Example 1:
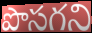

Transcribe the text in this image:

పొసగని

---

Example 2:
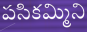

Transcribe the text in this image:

పసికమ్మిని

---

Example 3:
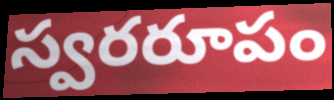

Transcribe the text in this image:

స్వరరూపం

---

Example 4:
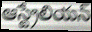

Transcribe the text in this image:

ఆస్ట్రేలియన్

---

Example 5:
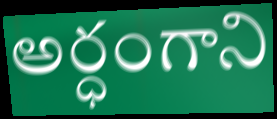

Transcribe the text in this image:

అర్ధంగాని